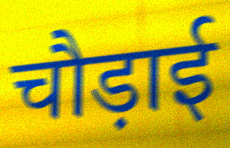
चौड़ाई